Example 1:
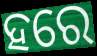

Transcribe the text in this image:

ହରେ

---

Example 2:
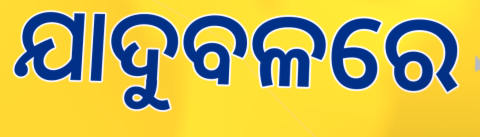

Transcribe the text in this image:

ଯାଦୁବଳରେ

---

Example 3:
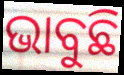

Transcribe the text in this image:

ଭାବୁଛି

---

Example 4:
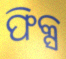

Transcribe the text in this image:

ଫିକ୍ସ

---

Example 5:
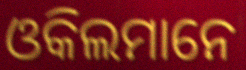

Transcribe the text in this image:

ଓକିଲମାନେ